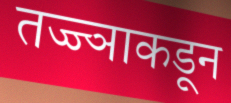
तज्ज्ञाकडून